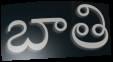
బాతి